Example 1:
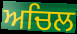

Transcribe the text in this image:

ਅਚਿਲ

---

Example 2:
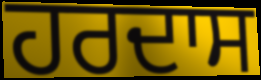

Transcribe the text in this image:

ਹਰਦਾਸ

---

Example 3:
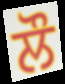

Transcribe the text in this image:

ਲੌ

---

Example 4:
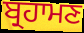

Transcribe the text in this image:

ਬ੍ਰਹਾਮਣ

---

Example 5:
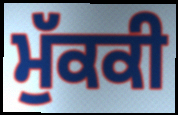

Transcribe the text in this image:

ਮੁੱਕਕੀ